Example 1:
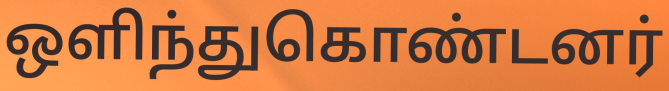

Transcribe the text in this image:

ஒளிந்துகொண்டனர்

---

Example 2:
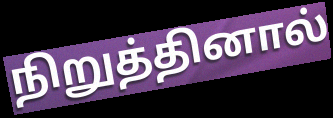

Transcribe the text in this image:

நிறுத்தினால்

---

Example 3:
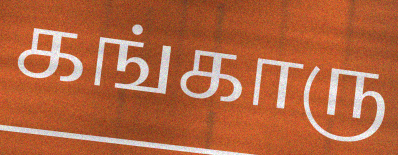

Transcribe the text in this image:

கங்காரு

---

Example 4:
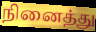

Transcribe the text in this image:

நினைத்து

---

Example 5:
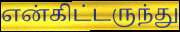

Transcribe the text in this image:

என்கிட்டருந்து